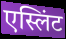
एस्लिंट